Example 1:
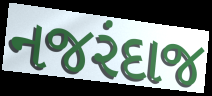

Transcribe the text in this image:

નજરંદાજ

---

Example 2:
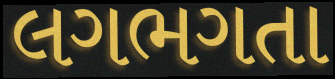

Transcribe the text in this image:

લગભગતા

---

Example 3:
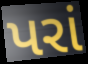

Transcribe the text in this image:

પરાં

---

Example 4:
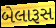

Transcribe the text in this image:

બેલારૂસ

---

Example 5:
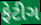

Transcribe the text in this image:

ફેટીગ